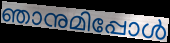
ഞാനുമിപ്പോൾ